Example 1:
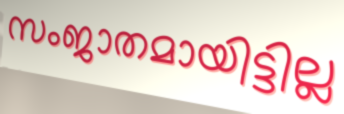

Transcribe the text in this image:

സംജാതമായിട്ടില്ല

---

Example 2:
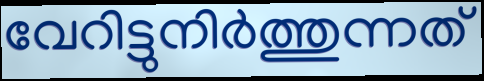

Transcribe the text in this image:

വേറിട്ടുനിർത്തുന്നത്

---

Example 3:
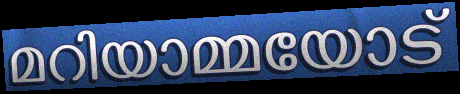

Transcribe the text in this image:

മറിയാമ്മയോട്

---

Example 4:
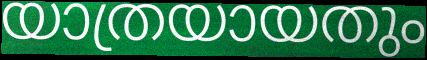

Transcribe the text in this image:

യാത്രയായതും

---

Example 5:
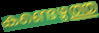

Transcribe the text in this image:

കണ്ടെഴുത്തു